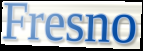
Fresno